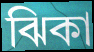
ঝিকা